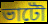
ভাটৌ